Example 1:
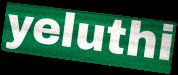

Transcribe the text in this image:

yeluthi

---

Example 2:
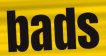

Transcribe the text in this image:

bads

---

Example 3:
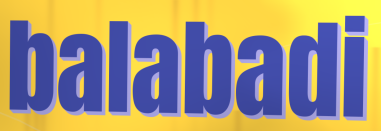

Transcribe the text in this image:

balabadi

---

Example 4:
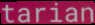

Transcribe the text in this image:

tarian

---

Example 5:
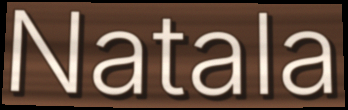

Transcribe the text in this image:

Natala